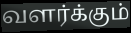
வளர்க்கும்